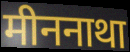
मीननाथा